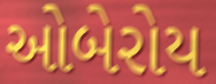
ઓબેરોય